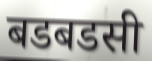
बडबडसी